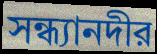
সন্ধ্যানদীর